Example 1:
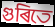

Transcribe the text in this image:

গুৰিতে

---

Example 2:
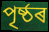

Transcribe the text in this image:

পৃষ্ঠৰ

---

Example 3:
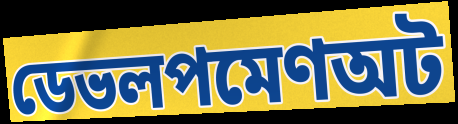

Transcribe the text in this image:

ডেভলপমেণঅট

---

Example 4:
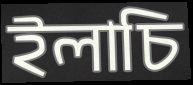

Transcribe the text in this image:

ইলাচি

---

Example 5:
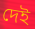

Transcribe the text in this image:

দেই